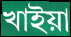
খাইয়া